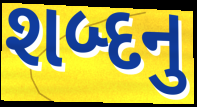
શબ્દનુ